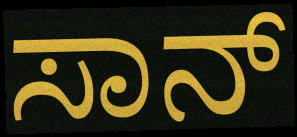
ಸಾನ್